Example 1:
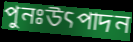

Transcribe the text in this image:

পুনঃউৎপাদন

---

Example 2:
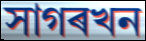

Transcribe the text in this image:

সাগৰখন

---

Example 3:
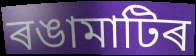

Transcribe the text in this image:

ৰঙামাটিৰ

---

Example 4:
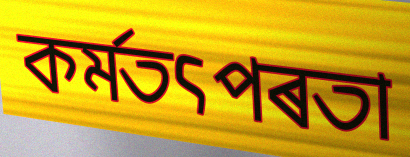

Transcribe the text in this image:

কৰ্মতৎপৰতা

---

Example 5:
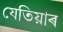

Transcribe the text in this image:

যেতিয়াৰ